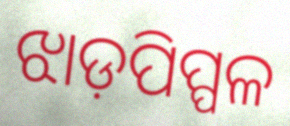
ଝାଡ଼ପିପ୍ପଳ